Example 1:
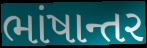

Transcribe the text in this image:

ભાંષાન્તર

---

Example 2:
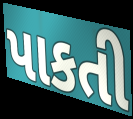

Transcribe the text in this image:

પાકતી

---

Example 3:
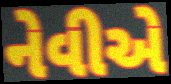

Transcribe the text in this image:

નેવીએ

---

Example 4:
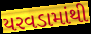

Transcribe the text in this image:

યરવડામાંથી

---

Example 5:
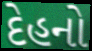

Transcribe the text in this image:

દેહનો